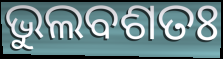
ଭୁଲବଶତଃ